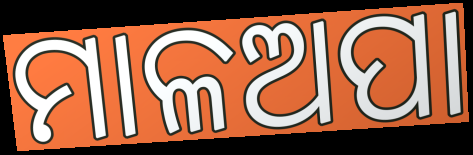
ମାଳଅପା